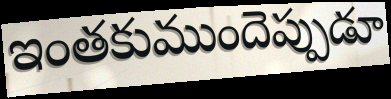
ఇంతకుముందెప్పుడూ